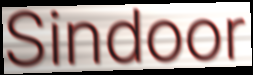
Sindoor